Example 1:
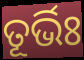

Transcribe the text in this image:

ତୂର୍ଭିଃ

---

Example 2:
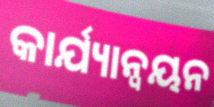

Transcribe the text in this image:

କାର୍ଯ୍ୟାନ୍ବୟନ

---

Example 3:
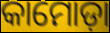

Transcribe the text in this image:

କାମୋଡ଼ା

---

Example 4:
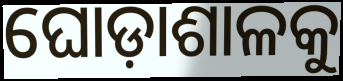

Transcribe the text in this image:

ଘୋଡ଼ାଶାଳକୁ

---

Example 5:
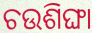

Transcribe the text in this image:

ଚଉଶିଙ୍ଘା